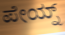
ಪೇಯ್ನ್